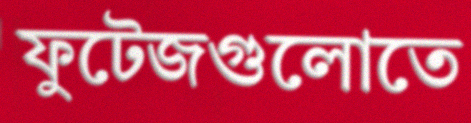
ফুটেজগুলোতে